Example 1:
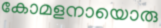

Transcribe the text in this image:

കോമളനായൊരു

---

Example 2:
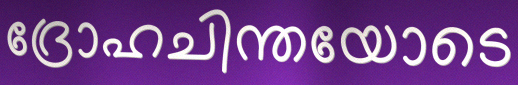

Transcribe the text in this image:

ദ്രോഹചിന്തയോടെ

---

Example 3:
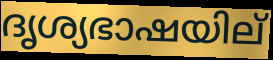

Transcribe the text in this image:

ദൃശ്യഭാഷയില്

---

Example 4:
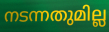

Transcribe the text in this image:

നടന്നതുമില്ല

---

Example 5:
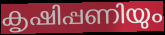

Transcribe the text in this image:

കൃഷിപ്പണിയും